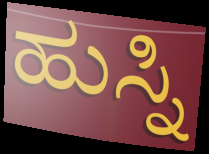
ಹುಸ್ನಿ